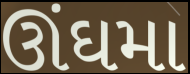
ઊંઘમા